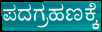
ಪದಗ್ರಹಣಕ್ಕೆ